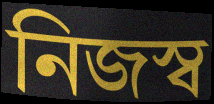
নিজস্ব